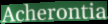
Acherontia